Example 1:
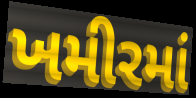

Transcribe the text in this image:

ખમીરમાં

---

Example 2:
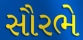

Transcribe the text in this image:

સૌરભે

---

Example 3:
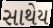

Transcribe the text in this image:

સાથેય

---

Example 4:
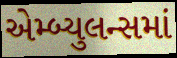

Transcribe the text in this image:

એમ્બ્યુલન્સમાં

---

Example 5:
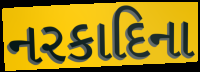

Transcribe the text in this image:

નરકાદિના